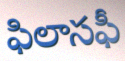
ఫిలాసఫీ